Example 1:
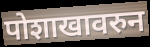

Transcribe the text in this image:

पोशाखावरुन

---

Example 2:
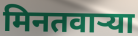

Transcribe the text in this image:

मिनतवार्‍या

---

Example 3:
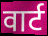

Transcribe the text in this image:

वार्ट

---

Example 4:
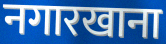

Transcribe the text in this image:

नगारखाना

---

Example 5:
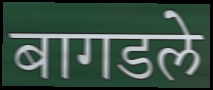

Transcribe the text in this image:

बागडले